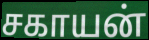
சகாயன்